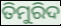
ତିମୁରିଦ